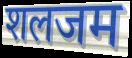
शलजम